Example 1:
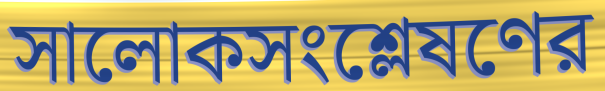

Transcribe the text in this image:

সালোকসংশ্লেষণের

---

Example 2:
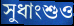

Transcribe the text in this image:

সুধাংশুও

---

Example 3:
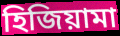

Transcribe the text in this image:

হিজিয়ামা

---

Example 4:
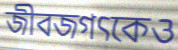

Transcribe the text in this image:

জীবজগৎকেও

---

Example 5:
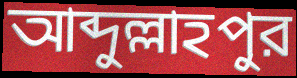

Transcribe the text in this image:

আব্দুল্লাহপুর